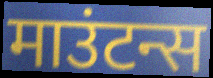
माउंटन्स